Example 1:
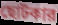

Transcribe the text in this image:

ছোটকার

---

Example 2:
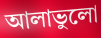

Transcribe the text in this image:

আলাভুলো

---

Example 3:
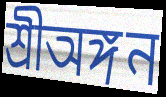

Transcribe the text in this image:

শ্রীঅঙ্গন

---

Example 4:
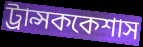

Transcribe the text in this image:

ট্রান্সককেশাস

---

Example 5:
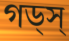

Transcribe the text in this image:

গড্স্